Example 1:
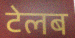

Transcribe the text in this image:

टेलब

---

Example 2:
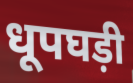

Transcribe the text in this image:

धूपघड़ी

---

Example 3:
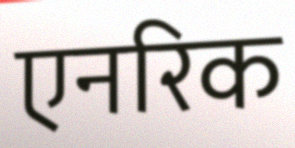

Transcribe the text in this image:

एनरिक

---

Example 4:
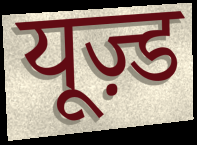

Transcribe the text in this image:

यूज़्ड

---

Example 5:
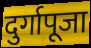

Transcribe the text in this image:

दुर्गापूजा